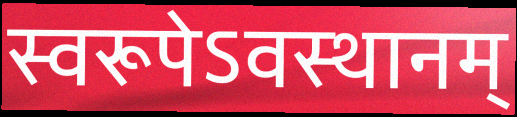
स्वरूपेऽवस्थानम्